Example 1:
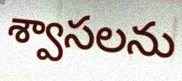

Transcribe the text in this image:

శ్వాసలను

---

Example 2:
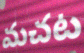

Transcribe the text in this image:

మచట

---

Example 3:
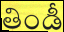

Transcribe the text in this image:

తిండీ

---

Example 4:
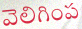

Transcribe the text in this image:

వెలిగింప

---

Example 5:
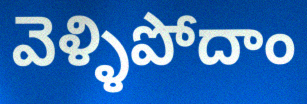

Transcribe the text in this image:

వెళ్ళిపోదాం